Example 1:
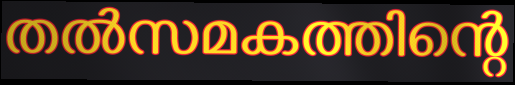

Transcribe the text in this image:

തൽസമകത്തിന്റെ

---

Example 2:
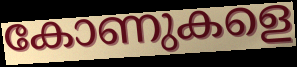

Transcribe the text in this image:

കോണുകളെ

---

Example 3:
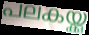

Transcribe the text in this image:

പലകയ്ക്കു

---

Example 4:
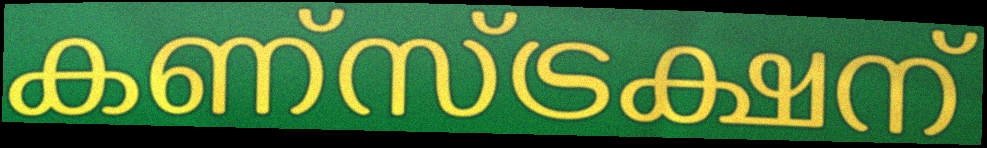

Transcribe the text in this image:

കണ്സ്ട്രക്ഷന്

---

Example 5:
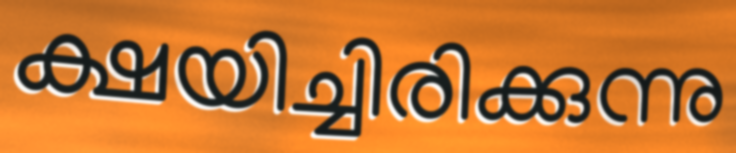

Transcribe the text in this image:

ക്ഷയിച്ചിരിക്കുന്നു